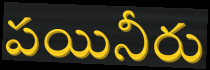
పయినీరు